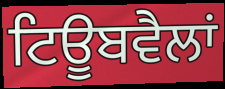
ਟਿਊਬਵੈਲਾਂ